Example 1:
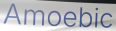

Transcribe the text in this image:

Amoebic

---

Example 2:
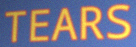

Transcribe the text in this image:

TEARS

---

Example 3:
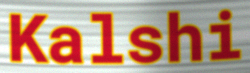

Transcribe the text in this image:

Kalshi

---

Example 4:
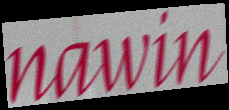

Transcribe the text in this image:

nawin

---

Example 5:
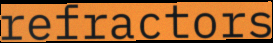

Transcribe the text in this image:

refractors